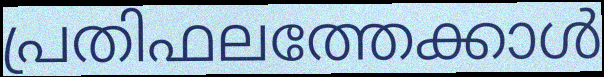
പ്രതിഫലത്തേക്കാൾ